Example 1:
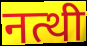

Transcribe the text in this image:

नत्थी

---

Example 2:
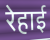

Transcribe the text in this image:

रेहाई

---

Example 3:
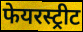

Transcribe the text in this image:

फेयरस्ट्रीट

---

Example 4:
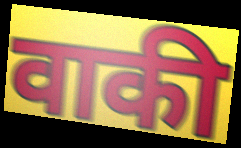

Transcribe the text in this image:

वाकी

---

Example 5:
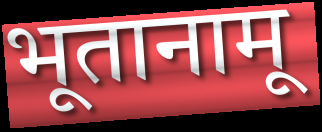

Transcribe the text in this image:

भूतानामू